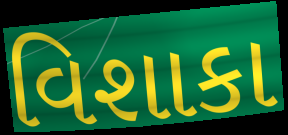
વિશાકા